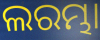
ଲରମ୍ଭା